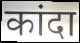
कांदा